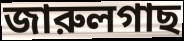
জারুলগাছ